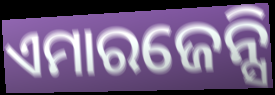
ଏମାରଜେନ୍ସି